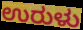
ಉರುಳು